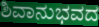
ಶಿವಾನುಭವದ